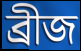
ব্ৰীজ